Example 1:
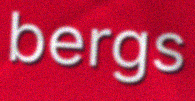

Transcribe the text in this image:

bergs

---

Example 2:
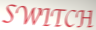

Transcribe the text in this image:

SWITCH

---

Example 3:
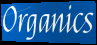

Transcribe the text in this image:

Organics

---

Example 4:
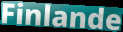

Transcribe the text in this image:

Finlande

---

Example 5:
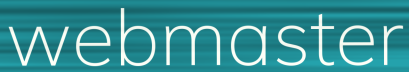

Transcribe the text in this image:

webmaster